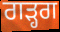
ਗੜ੍ਹਗ